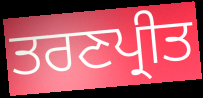
ਤਰਣਪ੍ਰੀਤ